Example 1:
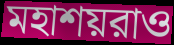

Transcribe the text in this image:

মহাশয়রাও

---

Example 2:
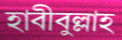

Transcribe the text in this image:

হাবীবুল্লাহ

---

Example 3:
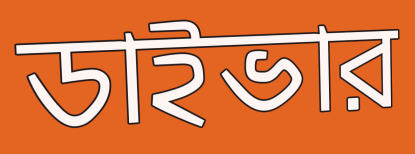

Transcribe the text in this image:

ডাইভার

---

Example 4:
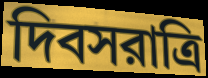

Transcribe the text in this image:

দিবসরাত্রি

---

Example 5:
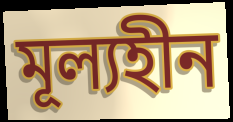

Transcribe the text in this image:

মূল্যহীন